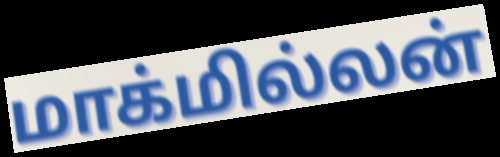
மாக்மில்லன்